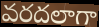
వరదలాగా